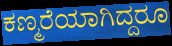
ಕಣ್ಮರೆಯಾಗಿದ್ದರೂ